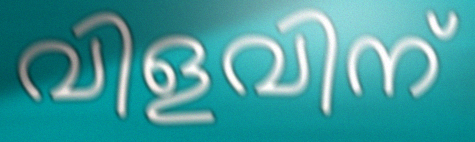
വിളവിന്